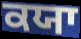
ਕਯਾ